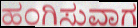
ಹಂಗಿಸುವಾಗ